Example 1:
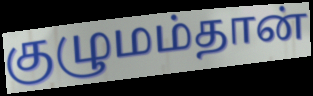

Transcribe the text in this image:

குழுமம்தான்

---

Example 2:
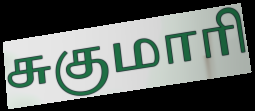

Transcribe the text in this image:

சுகுமாரி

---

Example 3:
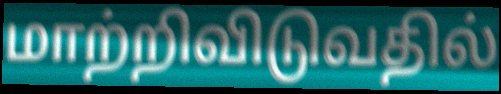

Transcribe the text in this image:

மாற்றிவிடுவதில்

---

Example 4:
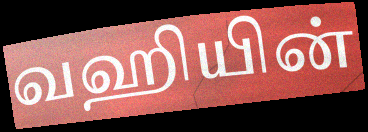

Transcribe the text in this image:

வஹியின்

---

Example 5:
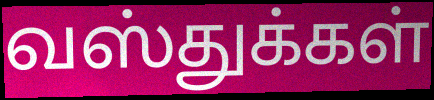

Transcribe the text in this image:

வஸ்துக்கள்